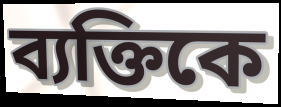
ব্যক্তিকে